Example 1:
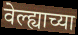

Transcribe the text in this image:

वेल्ह्याच्या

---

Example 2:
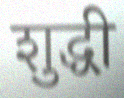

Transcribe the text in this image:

शुद्धी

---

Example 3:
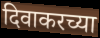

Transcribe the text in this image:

दिवाकरच्या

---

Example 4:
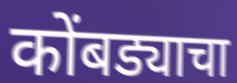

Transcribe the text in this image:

कोंबड्याचा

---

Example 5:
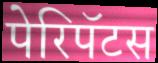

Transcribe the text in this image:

पेरिपॅटस